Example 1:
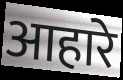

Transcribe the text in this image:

आहारे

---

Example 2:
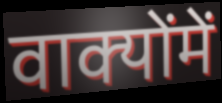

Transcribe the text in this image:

वाक्योंमें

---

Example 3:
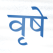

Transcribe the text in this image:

वृषे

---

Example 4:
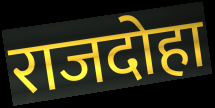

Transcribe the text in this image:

राजदोहा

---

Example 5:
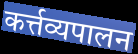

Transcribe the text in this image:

कर्त्तव्यपालन